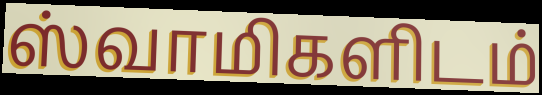
ஸ்வாமிகளிடம்